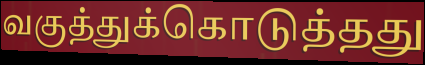
வகுத்துக்கொடுத்தது